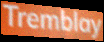
Tremblay